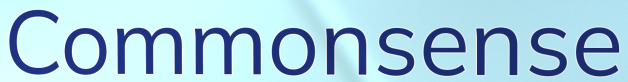
Commonsense